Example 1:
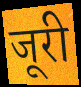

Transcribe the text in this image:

जूरी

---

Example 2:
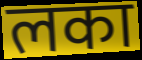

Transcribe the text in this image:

लका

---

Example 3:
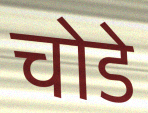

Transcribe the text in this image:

चोडे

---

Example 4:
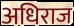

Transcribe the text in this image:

अधिराज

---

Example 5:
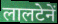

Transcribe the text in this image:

लालटेनें